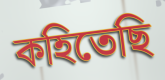
কহিতেছি